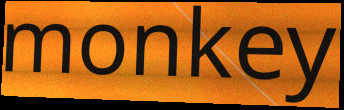
monkey